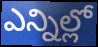
ఎన్నిల్లో